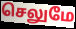
செலுமே